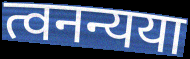
त्वनन्यया